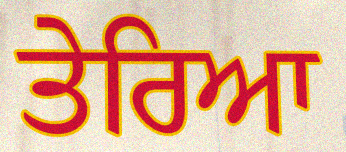
ਤੇਰਿਆ